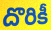
దొరికీ